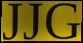
JJG